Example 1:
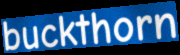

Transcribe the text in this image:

buckthorn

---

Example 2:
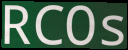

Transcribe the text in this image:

RCOs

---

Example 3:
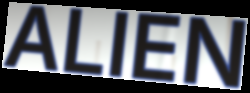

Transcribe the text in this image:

ALIEN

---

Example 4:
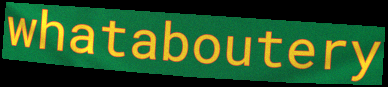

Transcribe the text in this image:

whataboutery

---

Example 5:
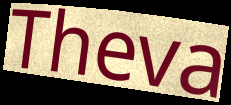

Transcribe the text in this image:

Theva